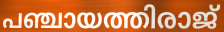
പഞ്ചായത്തിരാജ്